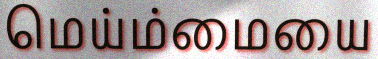
மெய்ம்மையை